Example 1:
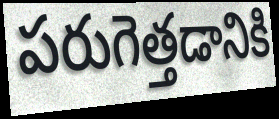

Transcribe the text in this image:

పరుగెత్తడానికి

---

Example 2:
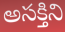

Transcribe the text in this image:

అసక్తిని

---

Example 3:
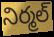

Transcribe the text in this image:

నిర్మల్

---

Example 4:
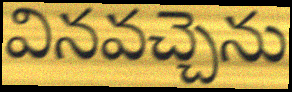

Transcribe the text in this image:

వినవచ్చెను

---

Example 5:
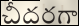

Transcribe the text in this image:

చీదరగా